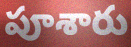
పూశారు